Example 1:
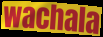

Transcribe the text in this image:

wachala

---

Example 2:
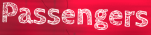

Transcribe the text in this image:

Passengers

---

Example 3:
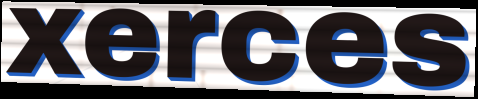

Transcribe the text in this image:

xerces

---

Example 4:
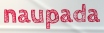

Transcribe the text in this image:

naupada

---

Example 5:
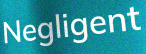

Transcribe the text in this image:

Negligent